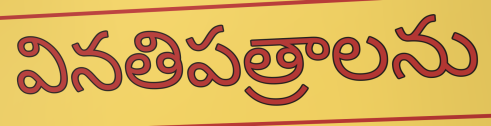
వినతిపత్రాలను